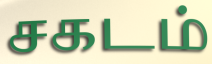
சகடம்